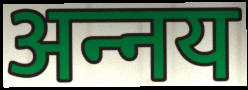
अन्नय